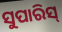
ସୁପାରିସ୍